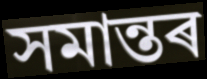
সমান্তৰ